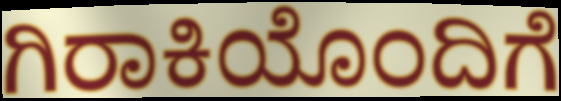
ಗಿರಾಕಿಯೊಂದಿಗೆ